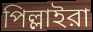
পিল্লাইরা